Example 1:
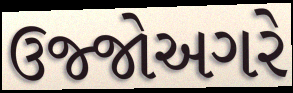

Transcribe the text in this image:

ઉજ્જોઅગરે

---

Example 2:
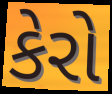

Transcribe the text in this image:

કેરો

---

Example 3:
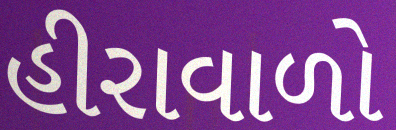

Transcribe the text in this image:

હીરાવાળો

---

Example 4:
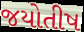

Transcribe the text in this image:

જયોતીષ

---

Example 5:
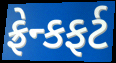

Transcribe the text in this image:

ફ્રેન્કફર્ટ